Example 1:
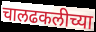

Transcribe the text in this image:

चालढकलीच्या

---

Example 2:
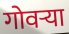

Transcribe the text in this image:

गोवर्‍या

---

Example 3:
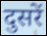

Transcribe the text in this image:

दुसरें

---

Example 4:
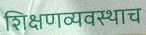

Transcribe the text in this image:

शिक्षणव्यवस्थाच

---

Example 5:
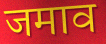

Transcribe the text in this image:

जमाव